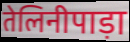
तेलिनीपाड़ा